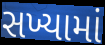
સખ્યામાં